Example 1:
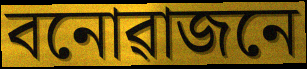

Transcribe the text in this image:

বনোৱাজনে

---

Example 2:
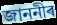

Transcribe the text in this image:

জাননীৰ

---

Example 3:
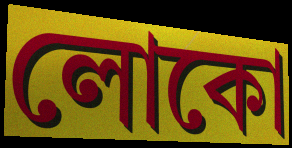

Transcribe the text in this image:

লোকো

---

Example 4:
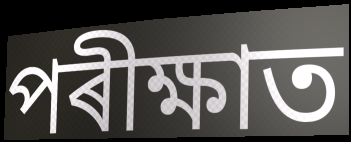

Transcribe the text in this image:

পৰীক্ষাত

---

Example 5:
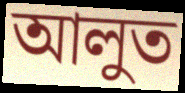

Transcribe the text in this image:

আলুত